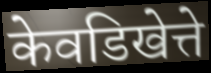
केवडिखेत्ते